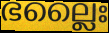
ഭല്ലൈഃ